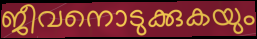
ജീവനൊടുക്കുകയും